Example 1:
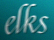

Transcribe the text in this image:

elks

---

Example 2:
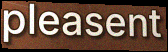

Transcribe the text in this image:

pleasent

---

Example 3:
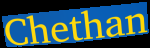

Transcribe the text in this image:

Chethan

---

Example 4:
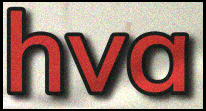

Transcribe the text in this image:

hva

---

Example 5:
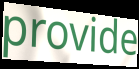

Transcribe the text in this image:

provide